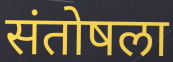
संतोषला